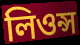
লিওন্স